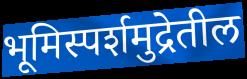
भूमिस्पर्शमुद्रेतील